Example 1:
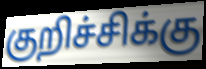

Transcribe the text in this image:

குறிச்சிக்கு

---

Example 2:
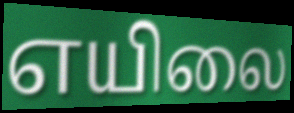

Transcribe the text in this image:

எயிலை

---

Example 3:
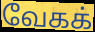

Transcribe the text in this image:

வேகக்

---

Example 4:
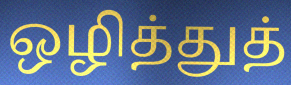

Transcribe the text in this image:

ஒழித்துத்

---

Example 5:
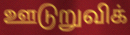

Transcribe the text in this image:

ஊடுறுவிக்